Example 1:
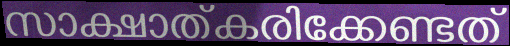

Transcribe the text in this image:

സാക്ഷാത്കരിക്കേണ്ടത്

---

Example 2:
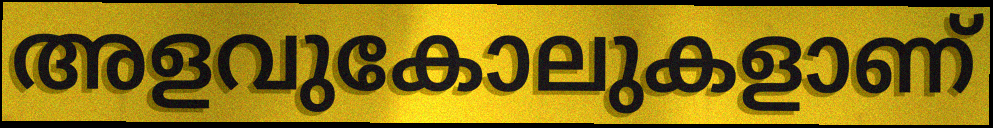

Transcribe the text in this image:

അളവുകോലുകളാണ്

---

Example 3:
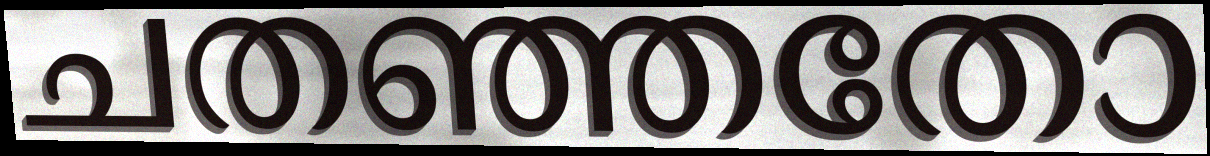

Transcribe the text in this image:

ചതഞ്ഞതോ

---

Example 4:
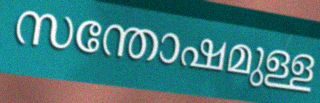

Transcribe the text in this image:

സന്തോഷമുള്ള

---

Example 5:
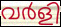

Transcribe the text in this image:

വർളി